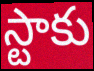
స్టాకు